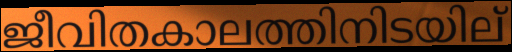
ജീവിതകാലത്തിനിടയില്